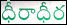
ధీరాధీర